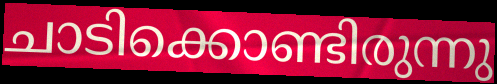
ചാടിക്കൊണ്ടിരുന്നു